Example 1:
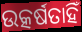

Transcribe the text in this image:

ଉତ୍କର୍ଷତାହିଁ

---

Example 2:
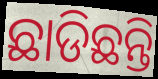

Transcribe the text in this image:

ଛାଡିଛନ୍ତି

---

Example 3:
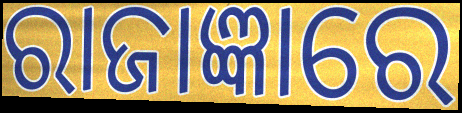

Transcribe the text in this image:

ରାଜାଜ୍ଞାରେ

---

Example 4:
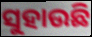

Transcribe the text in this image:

ସୁହାଉଛି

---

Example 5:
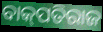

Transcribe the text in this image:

ବାକ୍‌ପତିରାଜ